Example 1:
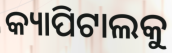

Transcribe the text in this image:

କ୍ୟାପିଟାଲକୁ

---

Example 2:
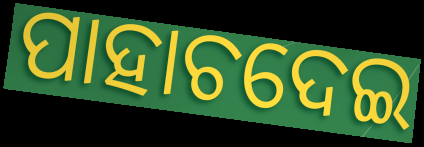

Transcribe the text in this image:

ପାହାଚଦେଇ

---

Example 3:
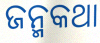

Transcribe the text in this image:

ଜନ୍ମକଥା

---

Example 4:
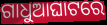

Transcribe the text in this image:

ଗାଧୁଆଘାଟରେ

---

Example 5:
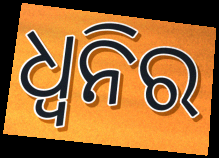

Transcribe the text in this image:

ଧ୍ୱନିର